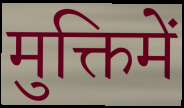
मुक्तिमें